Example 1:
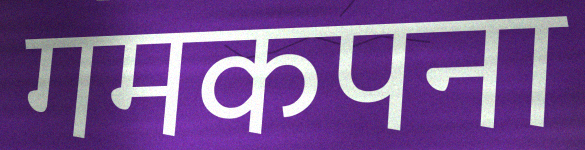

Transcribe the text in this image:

गमकपना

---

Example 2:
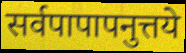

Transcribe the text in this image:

सर्वपापापनुत्तये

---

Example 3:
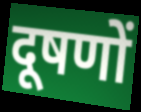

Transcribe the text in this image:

दूषणों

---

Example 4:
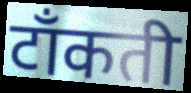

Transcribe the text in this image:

टाँकती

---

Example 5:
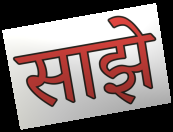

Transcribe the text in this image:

साझे